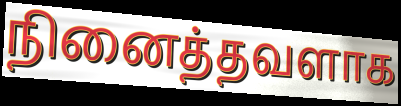
நினைத்தவளாக